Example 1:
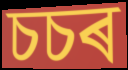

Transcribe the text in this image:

চচৰ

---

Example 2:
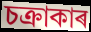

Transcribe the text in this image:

চক্ৰাকাৰ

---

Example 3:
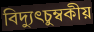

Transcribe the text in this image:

বিদ্যুৎচুম্বকীয়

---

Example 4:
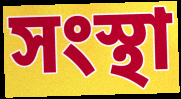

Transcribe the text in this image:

সংস্থা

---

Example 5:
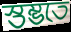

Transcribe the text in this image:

স্তম্ভতে